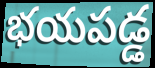
భయపడ్డ